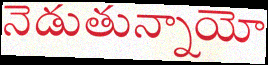
నెడుతున్నాయో